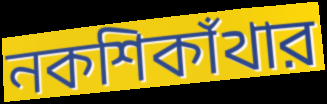
নকশিকাঁথার